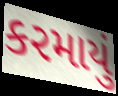
કરમાયું